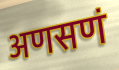
अणसणं